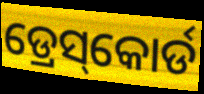
ଡ୍ରେସ୍‌କୋର୍ଡ